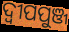
ଦ୍ଵୀପପୁଞ୍ଜ